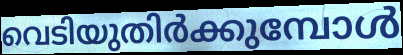
വെടിയുതിർക്കുമ്പോൾ